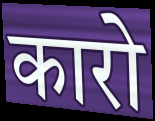
कारो